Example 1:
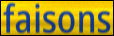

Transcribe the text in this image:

faisons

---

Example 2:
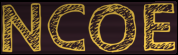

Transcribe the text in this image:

NCOE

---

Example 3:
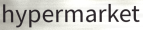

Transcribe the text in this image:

hypermarket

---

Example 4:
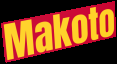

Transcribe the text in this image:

Makoto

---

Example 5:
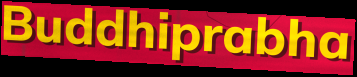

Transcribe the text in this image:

Buddhiprabha